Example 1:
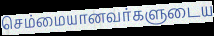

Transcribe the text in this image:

செம்மையானவர்களுடைய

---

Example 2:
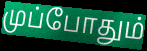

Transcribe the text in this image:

முப்போதும்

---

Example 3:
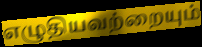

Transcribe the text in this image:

எழுதியவற்றையும்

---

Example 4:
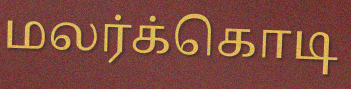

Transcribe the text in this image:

மலர்க்கொடி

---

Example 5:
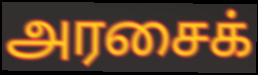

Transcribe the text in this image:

அரசைக்